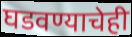
घडवण्याचेही